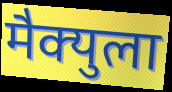
मैक्युला